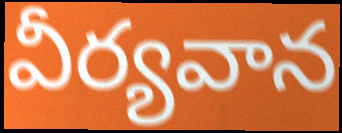
వీర్యవాన